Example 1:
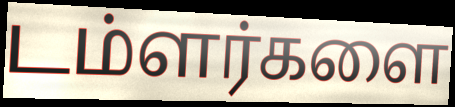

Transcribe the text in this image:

டம்ளர்களை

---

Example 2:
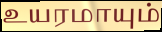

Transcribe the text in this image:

உயரமாயும்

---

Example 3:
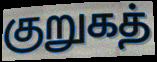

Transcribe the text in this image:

குறுகத்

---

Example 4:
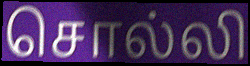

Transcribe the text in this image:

சொல்லி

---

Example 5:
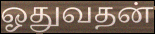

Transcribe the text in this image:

ஓதுவதன்